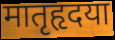
मातृहृदया